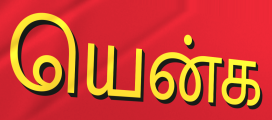
யென்க